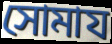
সোমায